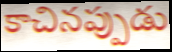
కాచినప్పుడు